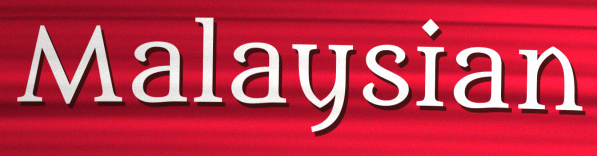
Malaysian